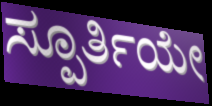
ಸ್ಪೂರ್ತಿಯೇ